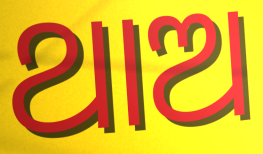
ଥାଅ